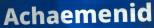
Achaemenid